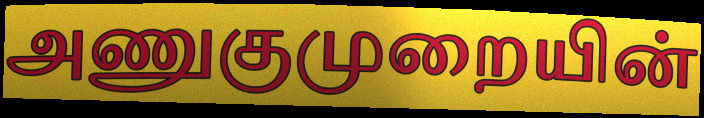
அணுகுமுறையின்